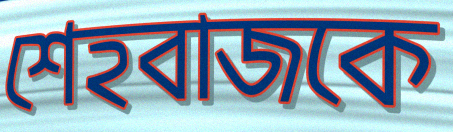
শেহবাজকে